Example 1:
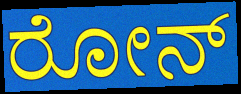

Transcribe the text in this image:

ರೋನ್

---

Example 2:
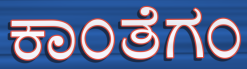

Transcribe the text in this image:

ಕಾಂತೆಗಂ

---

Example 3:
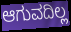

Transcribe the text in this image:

ಆಗುವದಿಲ್ಲ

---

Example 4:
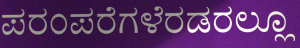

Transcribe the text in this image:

ಪರಂಪರೆಗಳೆರಡರಲ್ಲೂ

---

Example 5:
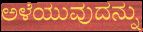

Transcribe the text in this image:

ಅಳೆಯುವುದನ್ನು